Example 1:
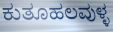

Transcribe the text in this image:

ಕುತೂಹಲವುಳ್ಳ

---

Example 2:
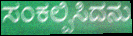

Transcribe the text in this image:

ಸಂಕಲ್ಪಿಸಿದನು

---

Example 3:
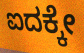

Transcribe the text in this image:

ಐದಕ್ಕೇ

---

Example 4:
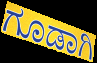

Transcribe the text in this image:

ಗೂಡಾಗಿ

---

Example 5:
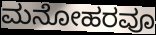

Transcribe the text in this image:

ಮನೋಹರವೂ